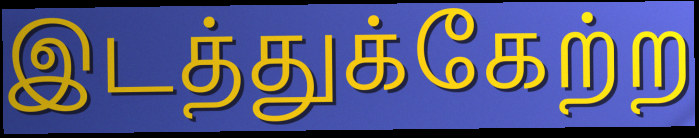
இடத்துக்கேற்ற